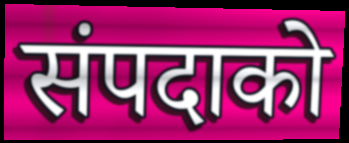
संपदाको